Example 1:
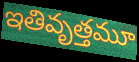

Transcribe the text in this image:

ఇతివృత్తమూ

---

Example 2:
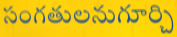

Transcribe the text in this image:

సంగతులనుగూర్చి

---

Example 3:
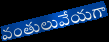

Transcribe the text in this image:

వంతులువేయగా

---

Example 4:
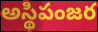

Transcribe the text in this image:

అస్థిపంజర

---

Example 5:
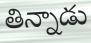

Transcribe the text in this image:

తిన్నాడు